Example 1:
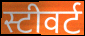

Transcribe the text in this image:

स्टीवर्ट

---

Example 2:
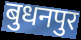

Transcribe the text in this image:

बुधनपुर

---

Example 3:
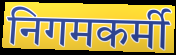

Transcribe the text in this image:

निगमकर्मी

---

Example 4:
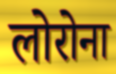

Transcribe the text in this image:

लोरोना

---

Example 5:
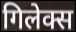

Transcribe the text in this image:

गिलेक्स